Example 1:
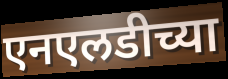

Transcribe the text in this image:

एनएलडीच्या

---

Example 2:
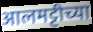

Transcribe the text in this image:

आलमट्टीच्या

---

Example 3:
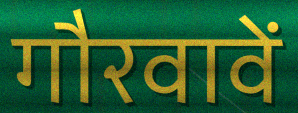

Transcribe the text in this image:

गौरवावें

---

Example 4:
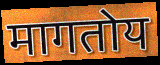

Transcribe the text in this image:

मागतोय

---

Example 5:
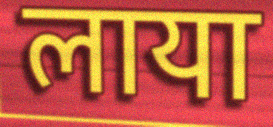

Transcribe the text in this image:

लाया